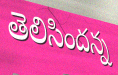
తెలిసిందన్న